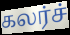
கலர்ச்